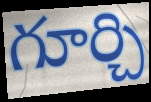
గూర్చి